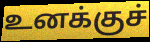
உனக்குச்